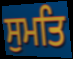
ਸੁਮਤਿ